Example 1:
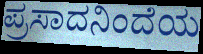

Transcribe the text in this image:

ಪ್ರಸಾದನಿಂದೆಯ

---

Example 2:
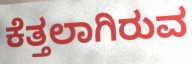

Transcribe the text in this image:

ಕೆತ್ತಲಾಗಿರುವ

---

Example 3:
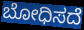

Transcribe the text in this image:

ಬೋಧಿಸದೆ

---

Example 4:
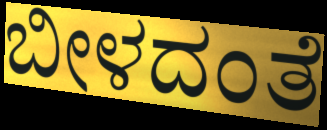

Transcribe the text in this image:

ಬೀಳದಂತೆ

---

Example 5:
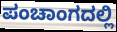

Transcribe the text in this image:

ಪಂಚಾಂಗದಲ್ಲಿ